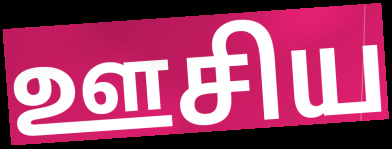
ஊசிய